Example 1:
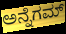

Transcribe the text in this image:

ಅನ್ನೆಗಮ್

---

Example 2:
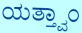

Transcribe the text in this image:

ಯತ್ತ್ವಾಂ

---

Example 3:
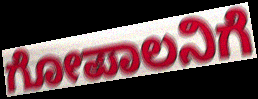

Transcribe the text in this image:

ಗೋಪಾಲನಿಗೆ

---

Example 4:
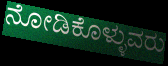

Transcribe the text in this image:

ನೋಡಿಕೊಳ್ಳುವರು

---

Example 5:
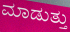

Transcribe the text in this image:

ಮಾಡುತ್ತು